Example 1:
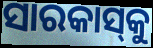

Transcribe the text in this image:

ସାରକାସ୍‌କୁ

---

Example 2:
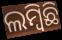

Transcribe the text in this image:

ଲମ୍ବିଛି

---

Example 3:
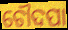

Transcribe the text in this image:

ଚୌଦପା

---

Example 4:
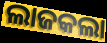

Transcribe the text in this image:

ଲାଜକଲା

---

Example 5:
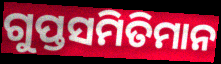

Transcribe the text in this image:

ଗୁପ୍ତସମିତିମାନ